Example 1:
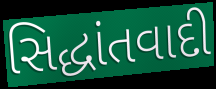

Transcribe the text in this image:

સિદ્ધાંતવાદી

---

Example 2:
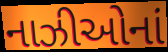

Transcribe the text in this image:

નાઝીઓનાં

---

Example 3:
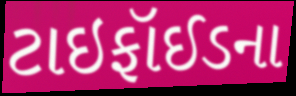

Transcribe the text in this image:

ટાઇફૉઈડના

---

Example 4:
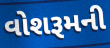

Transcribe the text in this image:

વોશરૂમની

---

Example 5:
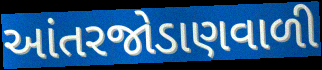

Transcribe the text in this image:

આંતરજોડાણવાળી